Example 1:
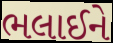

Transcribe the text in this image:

ભલાઈને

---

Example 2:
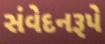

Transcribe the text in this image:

સંવેદનરૂપે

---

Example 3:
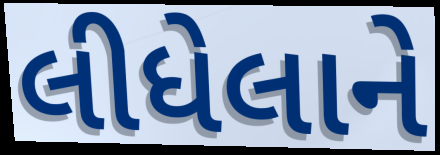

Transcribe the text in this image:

લીધેલાને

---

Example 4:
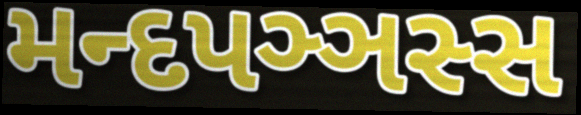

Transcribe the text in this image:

મન્દપઞ્ઞસ્સ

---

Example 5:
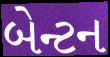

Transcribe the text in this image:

બેન્ટન